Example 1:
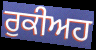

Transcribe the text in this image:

ਰੁਕੀਅਹ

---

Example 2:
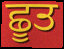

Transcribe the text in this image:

ਛੂਤ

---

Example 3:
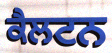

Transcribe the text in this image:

ਕੈਲਟਨ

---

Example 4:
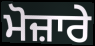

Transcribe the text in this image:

ਮੋਜ਼ਾਰੇ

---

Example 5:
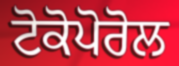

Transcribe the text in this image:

ਟੋਕੋਪੋਰੋਲ